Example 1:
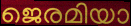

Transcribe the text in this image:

ജെരമിയാ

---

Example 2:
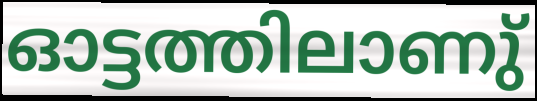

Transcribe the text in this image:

ഓട്ടത്തിലാണു്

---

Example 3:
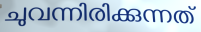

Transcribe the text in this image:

ചുവന്നിരിക്കുന്നത്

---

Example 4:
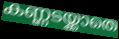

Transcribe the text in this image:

കണ്ണടയ്ക്കാതെ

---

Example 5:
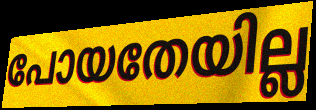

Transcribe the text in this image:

പോയതേയില്ല